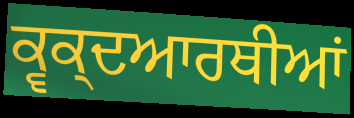
ਕ੍ਵਕ੍ਦਆਰਥੀਆਂ